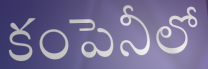
కంపెనీలో